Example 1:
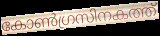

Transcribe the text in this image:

കോൺഗ്രസിനകത്ത്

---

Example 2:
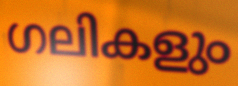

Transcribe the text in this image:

ഗലികളും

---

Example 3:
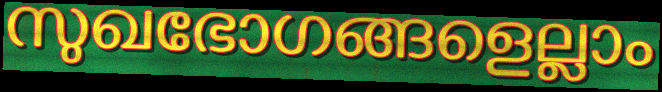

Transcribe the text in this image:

സുഖഭോഗങ്ങളെല്ലാം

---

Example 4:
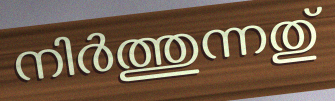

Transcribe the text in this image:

നിർത്തുന്നതു്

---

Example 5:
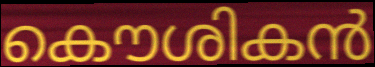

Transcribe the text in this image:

കൌശികൻ